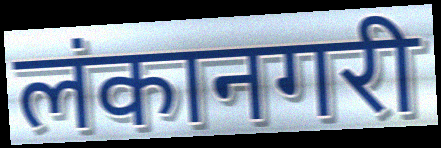
लंकानगरी